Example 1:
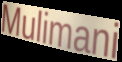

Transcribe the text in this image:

Mulimani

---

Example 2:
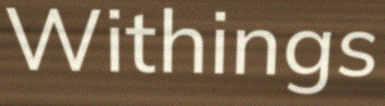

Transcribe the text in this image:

Withings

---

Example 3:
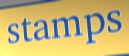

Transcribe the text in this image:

stamps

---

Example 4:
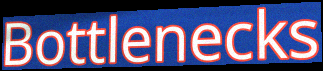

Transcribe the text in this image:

Bottlenecks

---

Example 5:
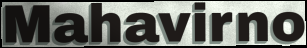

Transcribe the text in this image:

Mahavirno